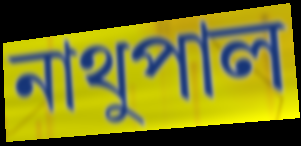
নাথুপাল